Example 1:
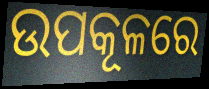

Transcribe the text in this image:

ଉପକୂଳରେ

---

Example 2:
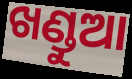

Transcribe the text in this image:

ଖଣ୍ଡୁଆ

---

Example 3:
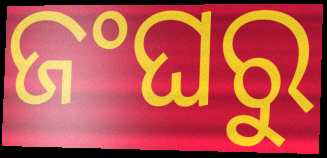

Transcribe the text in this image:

ଜଂଘରୁ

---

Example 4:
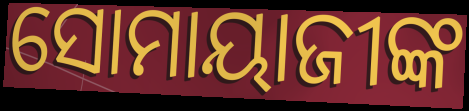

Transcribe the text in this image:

ସୋମାୟାଜୀଙ୍କ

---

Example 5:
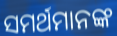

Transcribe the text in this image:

ସମର୍ଥମାନଙ୍କ